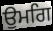
ਉਮਗਿ